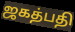
ஜகத்பதி